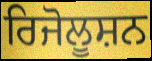
ਰਿਜੋਲੂਸ਼ਨ